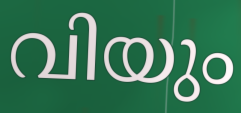
വിയും